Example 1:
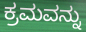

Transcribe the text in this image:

ಕ್ರಮವನ್ನು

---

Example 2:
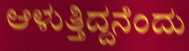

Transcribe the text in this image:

ಆಳುತ್ತಿದ್ದನೆಂದು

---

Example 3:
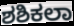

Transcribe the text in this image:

ಶಶಿಕಲಾ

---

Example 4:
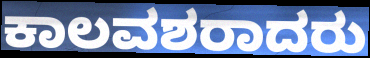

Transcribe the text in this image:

ಕಾಲವಶರಾದರು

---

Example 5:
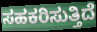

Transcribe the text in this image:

ಸಹಕರಿಸುತ್ತಿದೆ